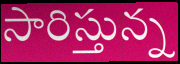
సారిస్తున్న